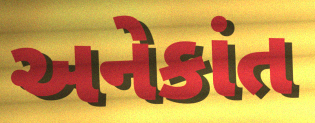
અનેકાંત